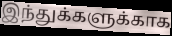
இந்துக்களுக்காக